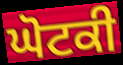
ਘੋਟਕੀ